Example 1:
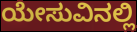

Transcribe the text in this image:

ಯೇಸುವಿನಲ್ಲಿ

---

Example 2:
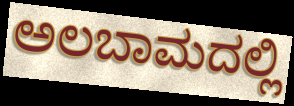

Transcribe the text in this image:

ಅಲಬಾಮದಲ್ಲಿ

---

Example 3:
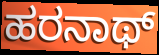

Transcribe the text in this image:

ಹರನಾಥ್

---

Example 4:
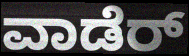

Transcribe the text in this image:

ವಾಡೆರ್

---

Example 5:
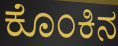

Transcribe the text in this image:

ಕೊಂಕಿನ